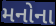
મનોના